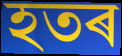
হতৰ